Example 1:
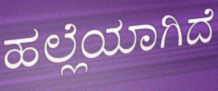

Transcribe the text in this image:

ಹಲ್ಲೆಯಾಗಿದೆ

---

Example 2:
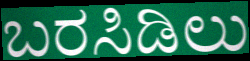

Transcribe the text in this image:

ಬರಸಿಡಿಲು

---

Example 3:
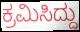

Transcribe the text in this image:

ಕ್ರಮಿಸಿದ್ದು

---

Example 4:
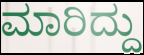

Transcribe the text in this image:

ಮಾರಿದ್ದು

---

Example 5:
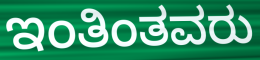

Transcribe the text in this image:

ಇಂತಿಂತವರು